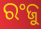
ରଂଜୁ